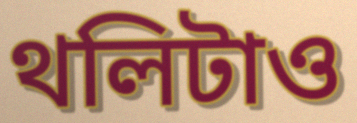
থলিটাও